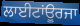
ਲਾਈਟਾਂਊਰਜਾ